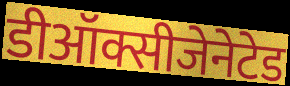
डीऑक्सीजेनेटेड